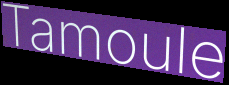
Tamoule